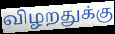
விழறதுக்கு